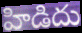
హిడిదు